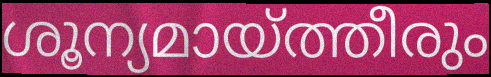
ശൂന്യമായ്ത്തീരും